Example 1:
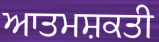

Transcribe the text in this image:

ਆਤਮਸ਼ਕਤੀ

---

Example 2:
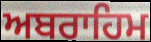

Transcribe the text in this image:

ਅਬਰਾਹਿਮ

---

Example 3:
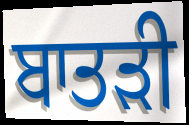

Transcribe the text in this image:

ਬਾਤੜੀ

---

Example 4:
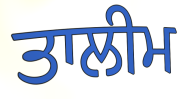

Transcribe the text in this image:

ਤਾਲੀਮ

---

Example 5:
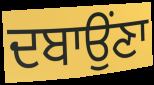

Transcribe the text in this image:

ਦਬਾਉਂਣਾ